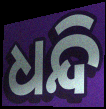
ଧନ୍ଦି